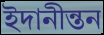
ইদানীন্তন